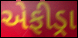
એફીડ્રા